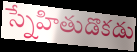
స్నేహితుడొకడు